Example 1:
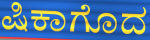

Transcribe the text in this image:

ಷಿಕಾಗೊದ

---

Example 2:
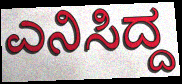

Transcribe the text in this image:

ಎನಿಸಿದ್ದ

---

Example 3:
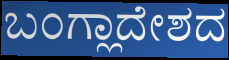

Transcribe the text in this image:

ಬಂಗ್ಲಾದೇಶದ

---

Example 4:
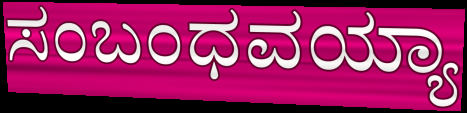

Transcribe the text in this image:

ಸಂಬಂಧವಯ್ಯಾ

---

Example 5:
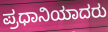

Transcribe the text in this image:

ಪ್ರಧಾನಿಯಾದರು